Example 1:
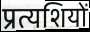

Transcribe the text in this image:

प्रत्यशियों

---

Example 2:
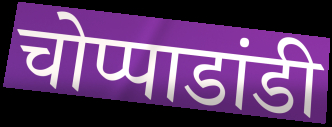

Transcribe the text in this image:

चोप्पाडांडी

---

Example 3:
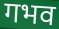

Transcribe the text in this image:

गभव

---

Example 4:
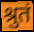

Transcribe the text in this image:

श्रुतं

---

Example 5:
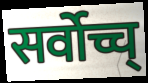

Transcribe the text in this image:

सर्वोच्च्